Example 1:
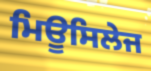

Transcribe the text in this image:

ਮਿਊਸਿਲੇਜ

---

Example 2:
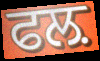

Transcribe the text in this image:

ਫਲ਼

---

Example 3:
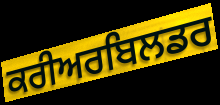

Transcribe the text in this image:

ਕਰੀਅਰਬਿਲਡਰ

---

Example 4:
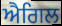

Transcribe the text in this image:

ਐਗਿਲ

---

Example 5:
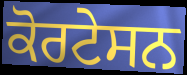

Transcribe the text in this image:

ਕੋਰਟੇਸਨ